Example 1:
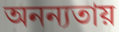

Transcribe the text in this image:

অনন্যতায়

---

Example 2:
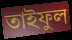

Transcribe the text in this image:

তাইফুল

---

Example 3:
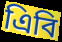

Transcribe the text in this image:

এিবি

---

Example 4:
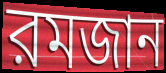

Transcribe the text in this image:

রমজান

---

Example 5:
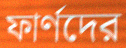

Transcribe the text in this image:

ফার্ণদের